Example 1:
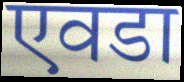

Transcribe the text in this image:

एवडा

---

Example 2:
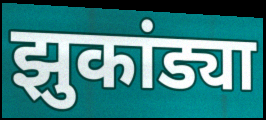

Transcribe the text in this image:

झुकांड्या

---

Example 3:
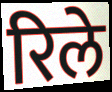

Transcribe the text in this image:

रिले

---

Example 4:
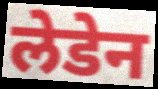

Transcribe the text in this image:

लेडेन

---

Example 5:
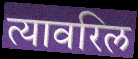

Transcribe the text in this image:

त्यावरिल